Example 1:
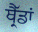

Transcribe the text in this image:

ਥ੍ਰੈੱਡਾਂ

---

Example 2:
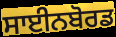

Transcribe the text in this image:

ਸਾਈਨਬੋਰਡ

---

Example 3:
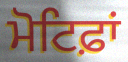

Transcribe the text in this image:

ਮੋਟਿਫ਼ਾਂ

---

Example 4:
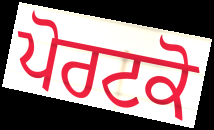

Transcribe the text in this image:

ਪੋਰਟਕੋ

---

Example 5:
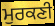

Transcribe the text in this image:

ਮੁਰਕਣੀ